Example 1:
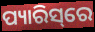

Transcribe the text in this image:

ପ୍ୟାରିସ୍‌ରେ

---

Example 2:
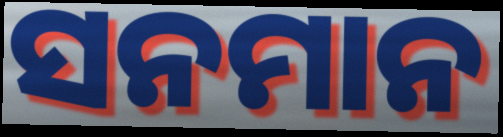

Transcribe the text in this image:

ସନମାନ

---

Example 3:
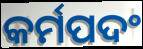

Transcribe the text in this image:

କର୍ମପଦଂ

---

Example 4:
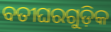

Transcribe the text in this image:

ବତୀଘରଗୁଡ଼ିକ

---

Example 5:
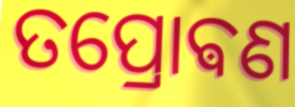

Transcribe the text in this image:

ତପ୍ରୋଵଣ